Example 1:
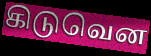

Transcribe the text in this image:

கிடுவென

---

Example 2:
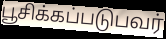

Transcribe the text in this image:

பூசிக்கப்படுபவர்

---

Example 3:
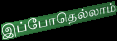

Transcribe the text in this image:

இப்போதெல்லாம்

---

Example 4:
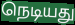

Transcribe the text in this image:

நெடியது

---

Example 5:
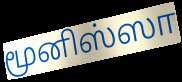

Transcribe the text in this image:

மூனிஸ்ஸா